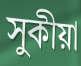
সুকীয়া